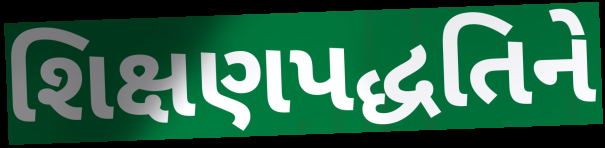
શિક્ષણપદ્ધતિને